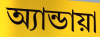
অ্যান্ডায়া